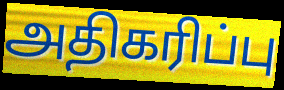
அதிகரிப்பு